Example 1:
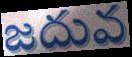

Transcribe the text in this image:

జదువ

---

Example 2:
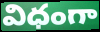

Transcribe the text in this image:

విధంగా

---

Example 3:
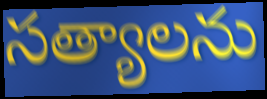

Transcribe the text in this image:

సత్యాలను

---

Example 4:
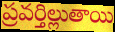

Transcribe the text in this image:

ప్రవర్తిల్లుతాయి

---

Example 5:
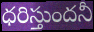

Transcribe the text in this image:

ధరిస్తుందనీ